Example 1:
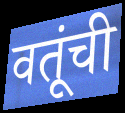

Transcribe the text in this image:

वतूंची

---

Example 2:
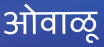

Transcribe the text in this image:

ओवाळू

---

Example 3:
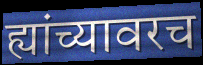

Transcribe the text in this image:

ह्यांच्यावरच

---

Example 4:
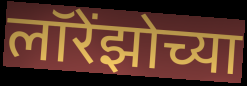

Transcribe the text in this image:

लॉरेंझोच्या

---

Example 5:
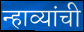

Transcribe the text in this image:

न्हाव्यांची